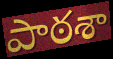
పాఠశా